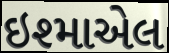
ઇશ્માએલ